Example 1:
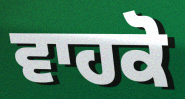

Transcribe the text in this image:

ਵਾਹਕੋ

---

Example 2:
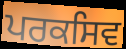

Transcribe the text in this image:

ਪਰਕਸਿਵ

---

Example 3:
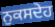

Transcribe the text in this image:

ਨੁਕਸਦੇਹ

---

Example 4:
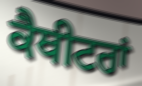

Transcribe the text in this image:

ਕੈਥੀਟਰਾਂ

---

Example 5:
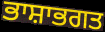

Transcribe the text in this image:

ਭਾਸ਼ਾਭਗਤ